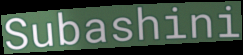
Subashini